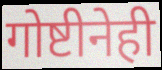
गोष्टीनेही